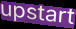
upstart